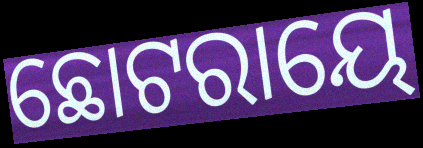
ଛୋଟରାୟେ